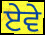
ਏਵੇ